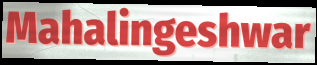
Mahalingeshwar